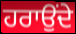
ਹਰਾਉਂਦੇ